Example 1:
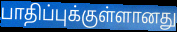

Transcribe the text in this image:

பாதிப்புக்குள்ளானது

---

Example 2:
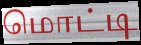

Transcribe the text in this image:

மொட்டி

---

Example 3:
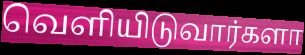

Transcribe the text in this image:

வெளியிடுவார்களா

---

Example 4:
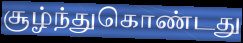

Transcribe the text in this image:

சூழ்ந்துகொண்டது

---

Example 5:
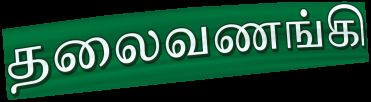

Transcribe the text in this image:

தலைவணங்கி